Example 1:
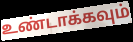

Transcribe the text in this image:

உண்டாக்கவும்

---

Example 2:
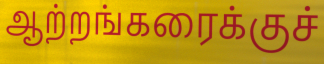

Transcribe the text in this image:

ஆற்றங்கரைக்குச்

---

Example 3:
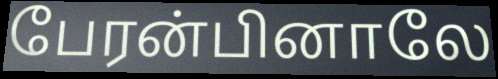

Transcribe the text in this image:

பேரன்பினாலே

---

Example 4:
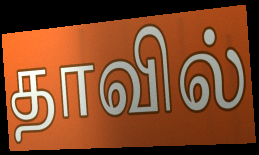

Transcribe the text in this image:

தாவில்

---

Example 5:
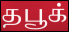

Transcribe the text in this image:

தபூக்